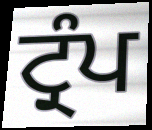
ਟ੍ਰੰਪ